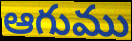
ఆగుము